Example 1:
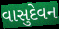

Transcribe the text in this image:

વાસુદેવન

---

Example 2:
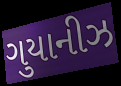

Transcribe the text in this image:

ગુયાનીઝ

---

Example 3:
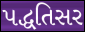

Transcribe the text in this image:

પદ્ધતિસર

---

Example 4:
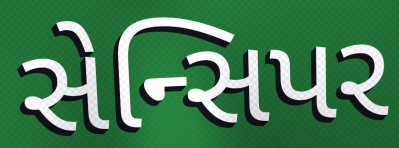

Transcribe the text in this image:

સેન્સિપર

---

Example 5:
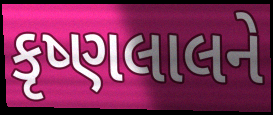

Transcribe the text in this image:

કૃષ્ણલાલને